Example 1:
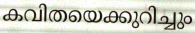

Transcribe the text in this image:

കവിതയെക്കുറിച്ചും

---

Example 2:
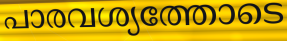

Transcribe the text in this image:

പാരവശ്യത്തോടെ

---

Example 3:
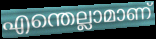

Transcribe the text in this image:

എന്തെല്ലാമാണ്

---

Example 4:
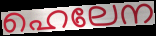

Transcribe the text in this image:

ഹെലേന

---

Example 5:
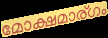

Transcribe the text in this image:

മോക്ഷമാര്ഗം